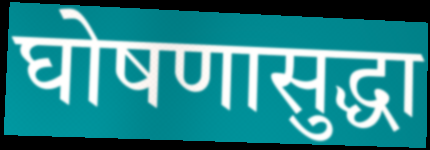
घोषणासुद्धा